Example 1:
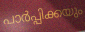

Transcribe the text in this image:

പാർപ്പിക്കയും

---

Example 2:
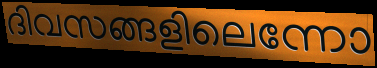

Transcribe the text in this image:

ദിവസങ്ങളിലെന്നോ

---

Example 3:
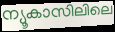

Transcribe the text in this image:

ന്യൂകാസിലിലെ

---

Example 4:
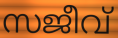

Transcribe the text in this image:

സജീവ്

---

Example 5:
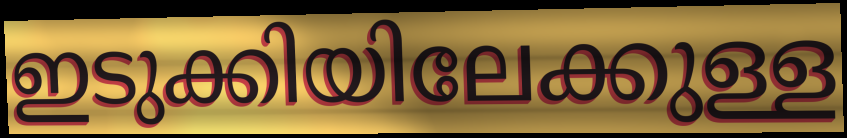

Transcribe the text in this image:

ഇടുക്കിയിലേക്കുള്ള